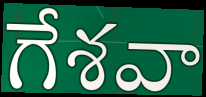
గేశవా